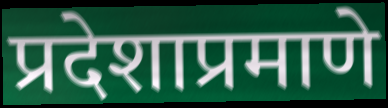
प्रदेशाप्रमाणे